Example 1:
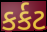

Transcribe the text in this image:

કર્કટ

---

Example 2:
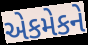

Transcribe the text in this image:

એકમેકને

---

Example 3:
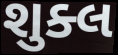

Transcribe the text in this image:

શુક્લ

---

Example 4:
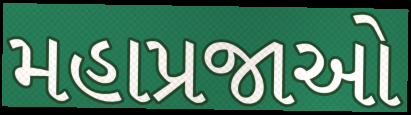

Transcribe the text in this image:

મહાપ્રજાઓ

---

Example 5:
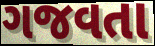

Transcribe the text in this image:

ગજવતા